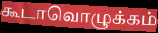
கூடாவொழுக்கம்